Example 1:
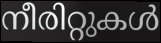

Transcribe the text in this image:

നീരിറ്റുകൾ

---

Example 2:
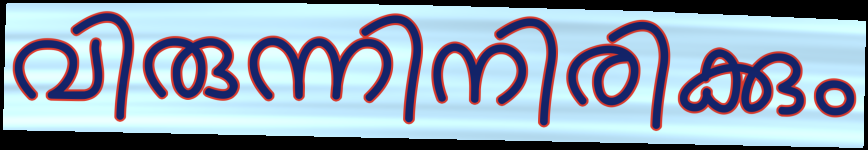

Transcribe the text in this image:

വിരുന്നിനിരിക്കും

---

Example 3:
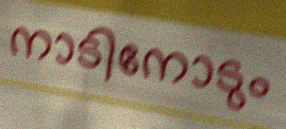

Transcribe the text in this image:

നാടിനോടും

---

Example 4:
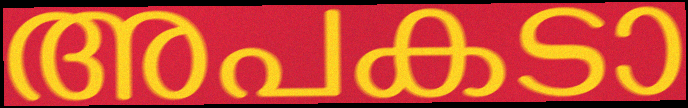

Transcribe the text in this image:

അപകടാ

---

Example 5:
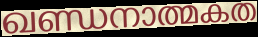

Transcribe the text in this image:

ഖണ്ഡനാത്മകത